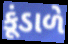
કૂંડાળે